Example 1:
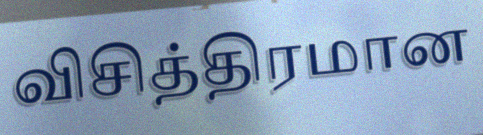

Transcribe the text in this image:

விசித்திரமான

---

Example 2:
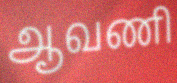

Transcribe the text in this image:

ஆவணி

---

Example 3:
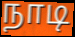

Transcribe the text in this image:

நாடி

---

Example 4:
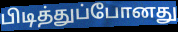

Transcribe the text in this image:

பிடித்துப்போனது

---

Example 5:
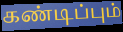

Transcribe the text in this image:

கண்டிப்பும்